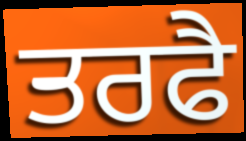
ਤਰਫੈ